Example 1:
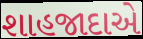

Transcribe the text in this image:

શાહજાદાએ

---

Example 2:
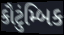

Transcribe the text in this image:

કૌટુંમ્બિક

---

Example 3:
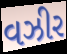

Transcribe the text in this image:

વઝીર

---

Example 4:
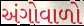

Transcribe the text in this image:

અંગોવાળો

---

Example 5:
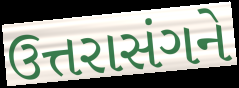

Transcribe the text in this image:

ઉત્તરાસંગને